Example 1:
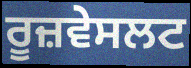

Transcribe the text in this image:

ਰੂਜ਼ਵੇਸਲਟ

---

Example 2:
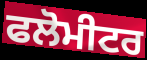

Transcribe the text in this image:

ਫਲੋਮੀਟਰ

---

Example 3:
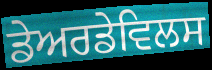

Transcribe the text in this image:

ਡੇਅਰਡੇਵਿਲਸ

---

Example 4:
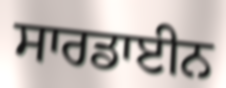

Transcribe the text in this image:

ਸਾਰਡਾਈਨ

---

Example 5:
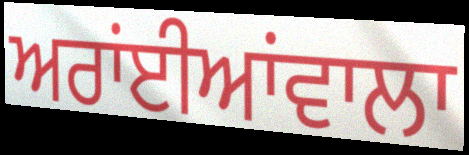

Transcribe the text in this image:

ਅਰਾਂਈਆਂਵਾਲਾ